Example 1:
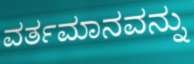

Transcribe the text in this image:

ವರ್ತಮಾನವನ್ನು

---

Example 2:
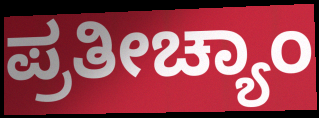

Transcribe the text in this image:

ಪ್ರತೀಚ್ಯಾಂ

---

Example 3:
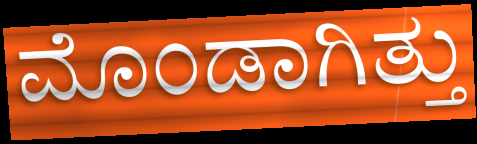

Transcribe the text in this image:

ಮೊಂಡಾಗಿತ್ತು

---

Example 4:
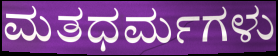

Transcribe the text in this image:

ಮತಧರ್ಮಗಳು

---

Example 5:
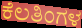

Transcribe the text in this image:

ಕೆಲತಿಂಗಳ